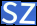
sz